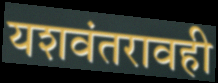
यशवंतरावही